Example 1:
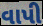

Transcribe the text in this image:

વાપી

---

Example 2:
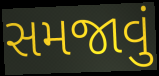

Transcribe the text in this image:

સમજાવું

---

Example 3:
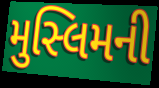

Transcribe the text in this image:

મુસ્લિમની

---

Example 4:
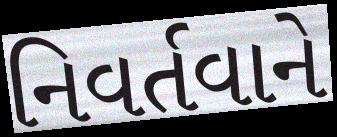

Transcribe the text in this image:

નિવર્તવાને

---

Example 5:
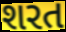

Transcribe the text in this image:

શરત